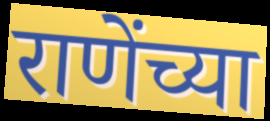
राणेंच्या